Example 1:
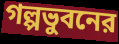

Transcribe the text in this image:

গল্পভুবনের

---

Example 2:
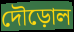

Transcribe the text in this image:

দৌড়োল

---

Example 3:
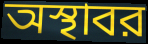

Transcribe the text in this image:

অস্থাবর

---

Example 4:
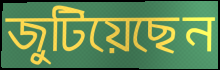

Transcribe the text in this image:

জুটিয়েছেন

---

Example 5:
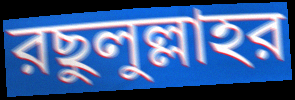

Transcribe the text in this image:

রছুলুল্লাহর